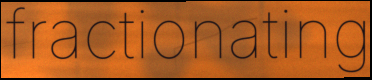
fractionating